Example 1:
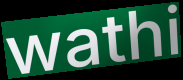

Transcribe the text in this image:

wathi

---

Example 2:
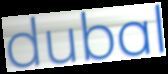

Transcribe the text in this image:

dubal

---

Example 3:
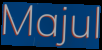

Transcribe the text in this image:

Majul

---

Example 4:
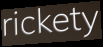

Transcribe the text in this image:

rickety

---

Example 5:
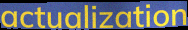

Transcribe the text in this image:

actualization